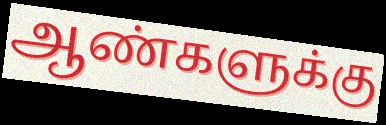
ஆண்களுக்கு